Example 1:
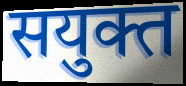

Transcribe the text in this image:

सयुक्त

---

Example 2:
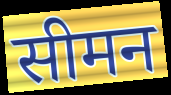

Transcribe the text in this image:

सीमन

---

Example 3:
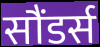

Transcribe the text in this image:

सौंडर्स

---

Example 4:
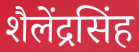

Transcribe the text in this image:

शैलेंद्रसिंह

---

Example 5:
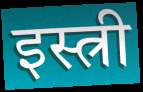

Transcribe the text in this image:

इस्त्री